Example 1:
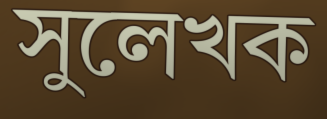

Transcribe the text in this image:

সুলেখক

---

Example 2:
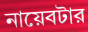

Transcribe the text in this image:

নায়েবটার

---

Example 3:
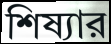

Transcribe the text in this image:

শিষ্যার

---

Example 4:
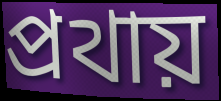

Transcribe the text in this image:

প্রথায়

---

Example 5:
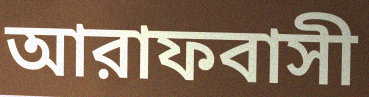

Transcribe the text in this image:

আরাফবাসী